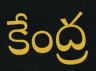
కేంద్ర